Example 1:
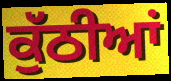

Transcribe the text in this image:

ਕੁੱਠੀਆਂ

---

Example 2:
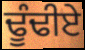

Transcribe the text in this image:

ਢੂੰਢੀਏ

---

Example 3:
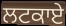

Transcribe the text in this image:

ਲਟਕਾਏ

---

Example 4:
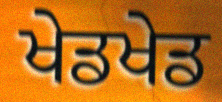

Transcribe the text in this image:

ਖੇਡਖੇਡ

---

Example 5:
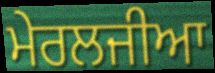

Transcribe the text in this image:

ਮੇਰਲਜੀਆ